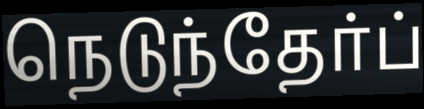
நெடுந்தேர்ப்